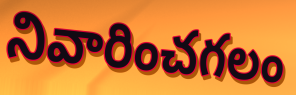
నివారించగలం